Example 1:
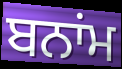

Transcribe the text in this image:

ਬਨਾਂਮ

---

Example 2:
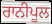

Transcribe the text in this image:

ਰਾਨੀਪੂਲ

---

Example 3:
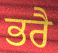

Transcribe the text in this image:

ਭਰੈ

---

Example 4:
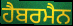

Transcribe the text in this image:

ਹੈਬਰਮੈਨ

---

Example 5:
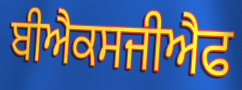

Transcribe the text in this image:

ਬੀਐਕਸਜੀਐਫ